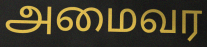
அமைவர